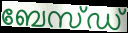
ബേസ്ഡ്